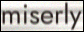
miserly